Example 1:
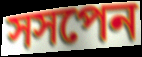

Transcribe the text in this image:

সসপেন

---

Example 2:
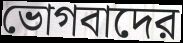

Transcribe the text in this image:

ভোগবাদের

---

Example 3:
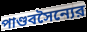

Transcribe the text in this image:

পাণ্ডবসৈন্যের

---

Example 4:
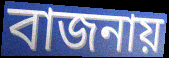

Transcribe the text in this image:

বাজনায়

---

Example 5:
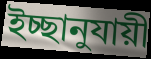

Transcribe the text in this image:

ইচ্ছানুযায়ী